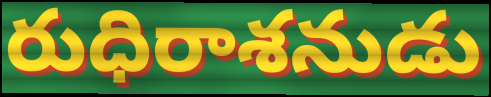
రుధిరాశనుడు